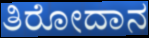
ತಿರೋದಾನ